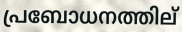
പ്രബോധനത്തില്